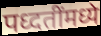
पध्दतींमध्ये